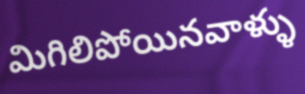
మిగిలిపోయినవాళ్ళు